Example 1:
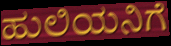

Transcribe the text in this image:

ಹುಲಿಯನಿಗೆ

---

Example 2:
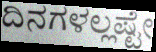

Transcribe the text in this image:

ದಿನಗಳಲ್ಲಷ್ಟೇ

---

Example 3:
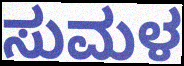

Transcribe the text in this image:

ಸುಮಳ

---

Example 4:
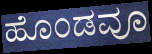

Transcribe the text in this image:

ಹೊಂಡವೂ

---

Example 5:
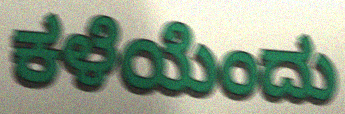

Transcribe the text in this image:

ಕಳೆಯೆಂದು